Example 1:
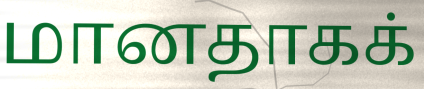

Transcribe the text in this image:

மானதாகக்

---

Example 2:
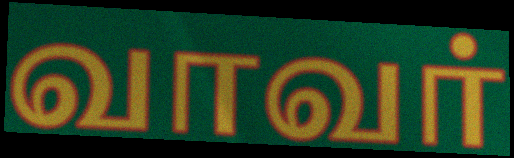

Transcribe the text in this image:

வாவர்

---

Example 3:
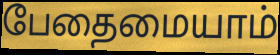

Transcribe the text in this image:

பேதைமையாம்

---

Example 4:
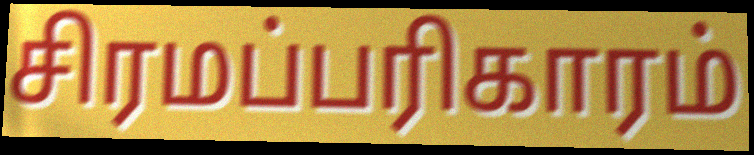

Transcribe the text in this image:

சிரமப்பரிகாரம்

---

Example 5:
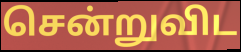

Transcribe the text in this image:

சென்றுவிட